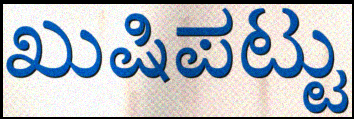
ಖುಷಿಪಟ್ಟು